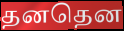
தனதென